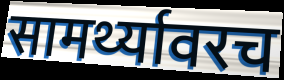
सामर्थ्यावरच